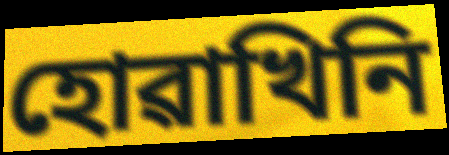
হোৱাখিনি